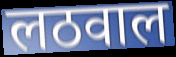
लठवाल